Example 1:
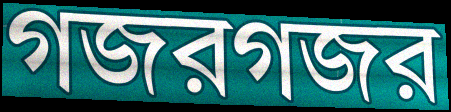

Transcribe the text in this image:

গজরগজর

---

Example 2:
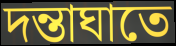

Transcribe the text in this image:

দন্তাঘাতে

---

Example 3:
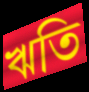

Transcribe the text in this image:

ঋতি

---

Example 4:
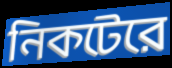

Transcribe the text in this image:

নিকটেরে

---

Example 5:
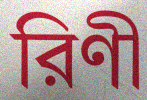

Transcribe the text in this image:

রিণী